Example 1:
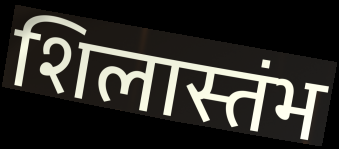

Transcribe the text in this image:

शिलास्तंभ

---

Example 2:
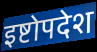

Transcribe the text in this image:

इष्टोपदेश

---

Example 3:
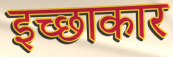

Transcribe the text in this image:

इच्छाकार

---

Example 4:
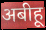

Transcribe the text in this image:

अबीहू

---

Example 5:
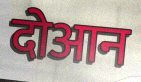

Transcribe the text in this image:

दोआन